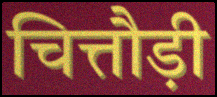
चित्तौड़ी